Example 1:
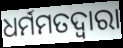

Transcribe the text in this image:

ଧର୍ମମତଦ୍ୱାରା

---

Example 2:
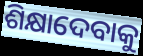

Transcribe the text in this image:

ଶିକ୍ଷାଦେବାକୁ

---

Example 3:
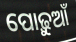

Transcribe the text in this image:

ପୋଢ଼ୁଆଁ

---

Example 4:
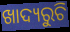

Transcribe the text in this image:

ଖାଦ୍ୟରୁଚି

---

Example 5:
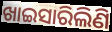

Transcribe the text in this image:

ଖାଇସାରିଲିଣି